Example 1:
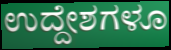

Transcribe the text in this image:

ಉದ್ದೇಶಗಳೂ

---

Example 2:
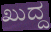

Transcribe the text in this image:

ಖುದ್ದ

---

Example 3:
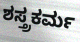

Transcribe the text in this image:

ಶಸ್ತ್ರಕರ್ಮ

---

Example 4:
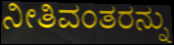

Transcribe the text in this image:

ನೀತಿವಂತರನ್ನು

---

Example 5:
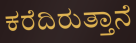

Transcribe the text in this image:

ಕರೆದಿರುತ್ತಾನೆ